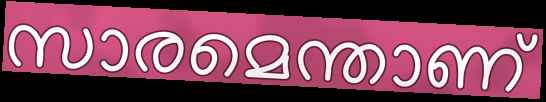
സാരമെന്താണ്